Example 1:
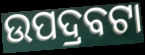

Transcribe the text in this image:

ଉପଦ୍ରବଟା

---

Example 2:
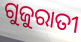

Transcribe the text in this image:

ଗୁଜୁରାତୀ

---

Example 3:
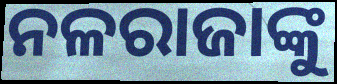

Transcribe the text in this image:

ନଳରାଜାଙ୍କୁ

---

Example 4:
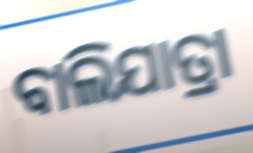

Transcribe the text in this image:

ବାଲିଯାତ୍ରା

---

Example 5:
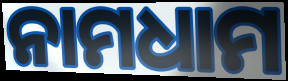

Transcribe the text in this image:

ନାମଧାମ